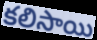
కలిసాయి